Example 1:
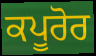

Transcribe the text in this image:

ਕਪੂਰੋਰ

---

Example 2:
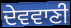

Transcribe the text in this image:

ਦੇਵਵਾਣੀ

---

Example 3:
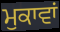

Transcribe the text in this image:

ਮੁਕਾਵਾਂ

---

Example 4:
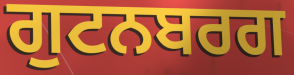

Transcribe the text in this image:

ਗੁਟਨਬਰਗ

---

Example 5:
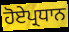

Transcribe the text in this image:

ਹੋਏਪ੍ਰਧਾਨ